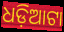
ଧଡ଼ିଆଟା